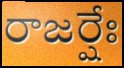
రాజర్షేః